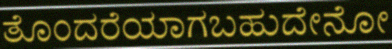
ತೊಂದರೆಯಾಗಬಹುದೇನೋ